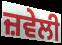
ਜ਼ਵੇਲੀ